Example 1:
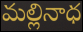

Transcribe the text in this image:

మల్లినాధ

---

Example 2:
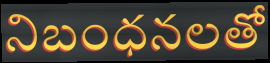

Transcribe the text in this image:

నిబంధనలతో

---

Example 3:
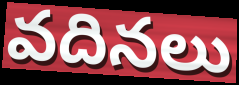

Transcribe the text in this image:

వదినలు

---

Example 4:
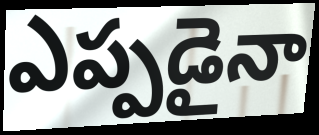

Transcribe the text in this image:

ఎప్పడైనా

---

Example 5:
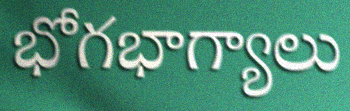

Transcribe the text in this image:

భోగభాగ్యాలు